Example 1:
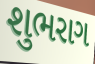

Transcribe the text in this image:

શુભરાગ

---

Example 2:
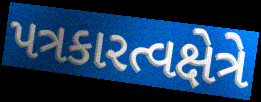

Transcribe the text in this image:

પત્રકારત્વક્ષેત્રે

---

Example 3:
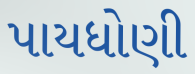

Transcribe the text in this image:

પાયધોણી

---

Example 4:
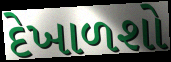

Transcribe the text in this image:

દેખાળશો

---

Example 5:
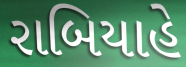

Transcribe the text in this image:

રાબિયાહે